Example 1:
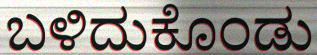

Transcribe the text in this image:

ಬಳಿದುಕೊಂಡು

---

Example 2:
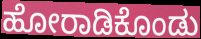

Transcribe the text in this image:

ಹೋರಾಡಿಕೊಂಡು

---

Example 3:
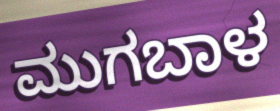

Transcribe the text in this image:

ಮುಗಬಾಳ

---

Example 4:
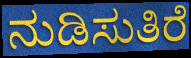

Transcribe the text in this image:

ನುಡಿಸುತಿರೆ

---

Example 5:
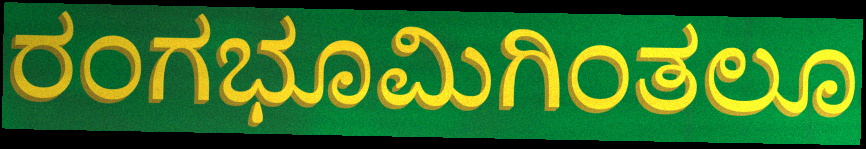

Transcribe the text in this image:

ರಂಗಭೂಮಿಗಿಂತಲೂ